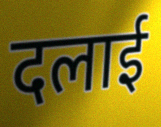
दलाई